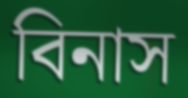
বিনাস